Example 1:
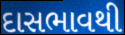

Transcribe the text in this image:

દાસભાવથી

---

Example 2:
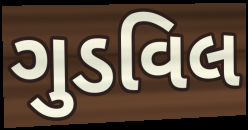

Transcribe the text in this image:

ગુડવિલ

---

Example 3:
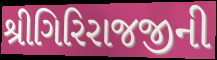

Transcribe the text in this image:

શ્રીગિરિરાજજીની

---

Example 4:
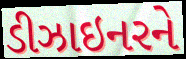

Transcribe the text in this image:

ડીઝાઇનરને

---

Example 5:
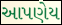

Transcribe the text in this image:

આપણેય